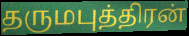
தருமபுத்திரன்